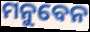
ମନୁବେନ